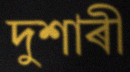
দুশাৰী